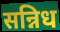
सन्निध